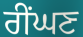
ਰੀਂਘਣ